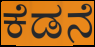
ಕೆಡನೆ